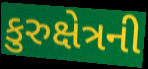
કુરુક્ષેત્રની